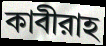
কাবীরাহ